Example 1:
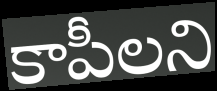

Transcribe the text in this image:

కాపీలని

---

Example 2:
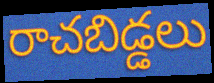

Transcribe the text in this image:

రాచబిడ్డలు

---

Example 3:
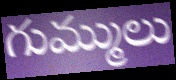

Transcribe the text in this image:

గుమ్ములు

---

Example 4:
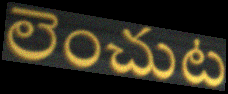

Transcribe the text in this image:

లెంచుట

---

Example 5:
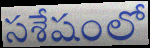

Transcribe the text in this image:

సశేషంలో